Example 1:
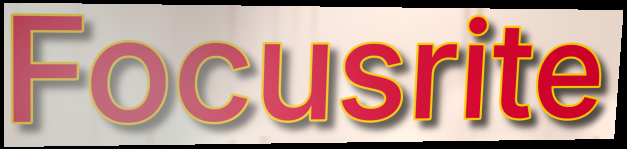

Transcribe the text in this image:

Focusrite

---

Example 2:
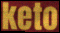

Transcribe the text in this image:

keto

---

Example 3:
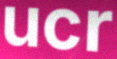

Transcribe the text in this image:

ucr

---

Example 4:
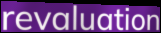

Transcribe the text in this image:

revaluation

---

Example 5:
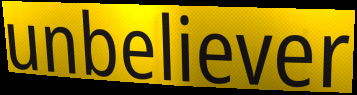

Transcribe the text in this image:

unbeliever